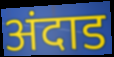
अंदाड